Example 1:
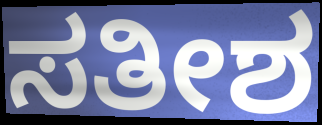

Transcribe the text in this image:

ಸತೀಶ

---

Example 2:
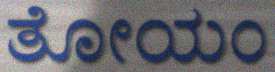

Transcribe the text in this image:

ತೋಯಂ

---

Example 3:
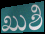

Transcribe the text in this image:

ಖುಶಿ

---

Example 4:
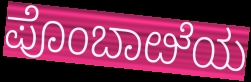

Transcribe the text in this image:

ಪೊಂಬಾೞೆಯ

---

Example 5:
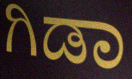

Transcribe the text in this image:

ಗಿಡಾ